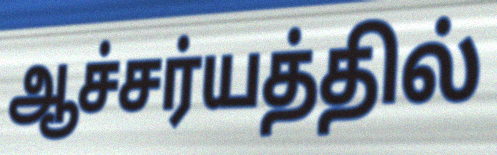
ஆச்சர்யத்தில்